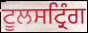
ਟੂਲਸਟ੍ਰਿੰਗ